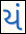
યં